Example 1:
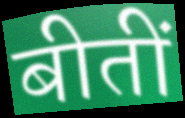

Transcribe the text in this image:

बीतीं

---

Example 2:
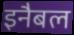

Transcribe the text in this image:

इनैबल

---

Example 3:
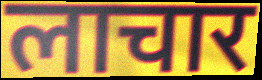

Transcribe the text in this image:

लाचार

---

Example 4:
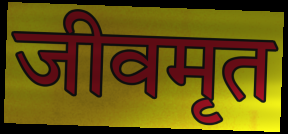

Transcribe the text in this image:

जीवमृत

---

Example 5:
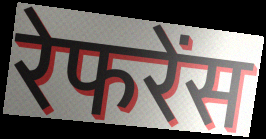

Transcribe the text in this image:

रेफरेंस